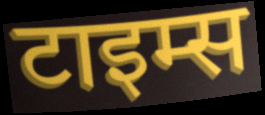
टाइम्‍स